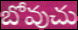
బోవుచు